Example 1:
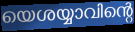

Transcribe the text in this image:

യെശയ്യാവിന്റെ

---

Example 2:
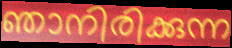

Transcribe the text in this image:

ഞാനിരിക്കുന്ന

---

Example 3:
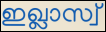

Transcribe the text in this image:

ഇഖ്ലാസ്വ്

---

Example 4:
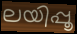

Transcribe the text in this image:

ലയിപ്പൂ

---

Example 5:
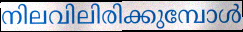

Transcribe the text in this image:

നിലവിലിരിക്കുമ്പോൾ